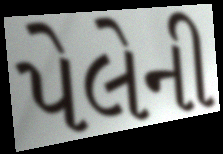
પેલેની